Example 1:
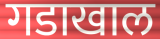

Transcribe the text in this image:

गडाखाल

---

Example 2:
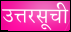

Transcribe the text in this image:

उत्तरसूची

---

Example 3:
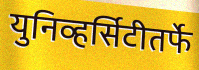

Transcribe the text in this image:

युनिव्हर्सिटीतर्फे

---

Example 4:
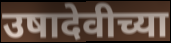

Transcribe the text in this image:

उषादेवीच्या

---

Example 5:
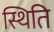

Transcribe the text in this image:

स्थिति